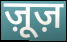
ज़ूज़